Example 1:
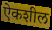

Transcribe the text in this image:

ऐकशील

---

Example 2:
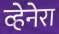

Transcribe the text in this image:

व्हेनेरा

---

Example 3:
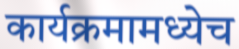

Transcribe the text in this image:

कार्यक्रमामध्येच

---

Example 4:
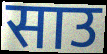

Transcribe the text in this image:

साउ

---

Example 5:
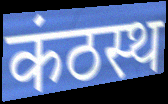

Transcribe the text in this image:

कंठस्थ